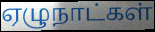
ஏழுநாட்கள்